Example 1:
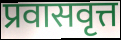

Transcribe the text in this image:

प्रवासवृत्त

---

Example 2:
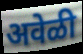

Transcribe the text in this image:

अवेळी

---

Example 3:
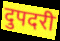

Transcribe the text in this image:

दुपदरी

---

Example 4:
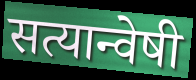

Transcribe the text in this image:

सत्यान्वेषी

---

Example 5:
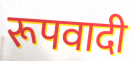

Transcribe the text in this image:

रूपवादी